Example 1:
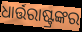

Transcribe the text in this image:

ଧାର୍ତ୍ତରାଷ୍ଟ୍ରଙ୍କର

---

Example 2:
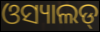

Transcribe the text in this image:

ଓସ୍ୟାଲଡ୍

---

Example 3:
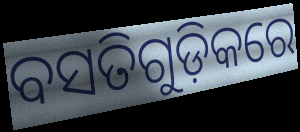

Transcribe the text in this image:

ବସତିଗୁଡ଼ିକରେ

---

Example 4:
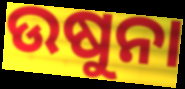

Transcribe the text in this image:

ଉଷୁନା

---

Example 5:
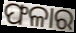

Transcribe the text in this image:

ଫଳାର